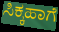
ಸಿಕ್ಕಹಾಗೆ